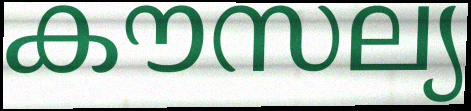
കൗസല്യ